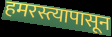
हमरस्त्यापासून